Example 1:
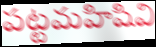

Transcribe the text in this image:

పట్టమహిషివి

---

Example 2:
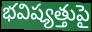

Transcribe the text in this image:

భవిష్యత్తుపై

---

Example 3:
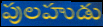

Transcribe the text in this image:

పులహుడు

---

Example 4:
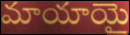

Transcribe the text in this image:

మాయాయై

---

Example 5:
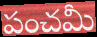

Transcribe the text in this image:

పంచమీ